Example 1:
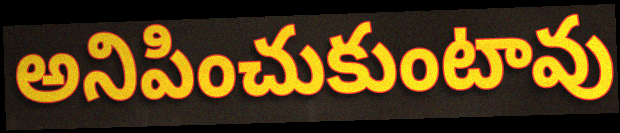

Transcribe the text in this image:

అనిపించుకుంటావు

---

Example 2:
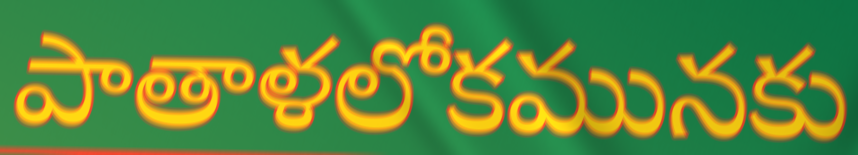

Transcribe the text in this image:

పాతాళలోకమునకు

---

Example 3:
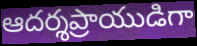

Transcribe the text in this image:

ఆదర్శప్రాయుడిగా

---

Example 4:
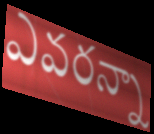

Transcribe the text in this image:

ఎవరన్నా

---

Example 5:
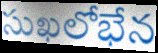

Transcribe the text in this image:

సుఖలోభేన